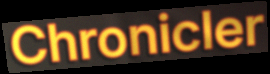
Chronicler